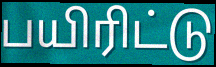
பயிரிட்டு